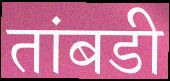
तांबडी